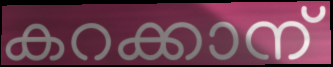
കറക്കാന്